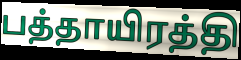
பத்தாயிரத்தி